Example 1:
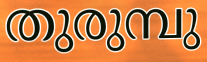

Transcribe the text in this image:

തുരുമ്പു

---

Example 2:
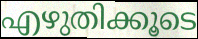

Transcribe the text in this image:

എഴുതിക്കൂടെ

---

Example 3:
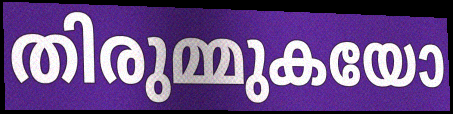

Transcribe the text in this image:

തിരുമ്മുകയോ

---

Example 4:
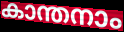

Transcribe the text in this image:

കാന്തനാം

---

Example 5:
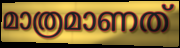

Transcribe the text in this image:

മാത്രമാണത്